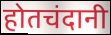
होतचंदानी